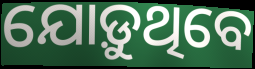
ଯୋଡ଼ୁଥିବେ